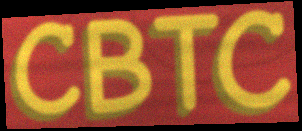
CBTC